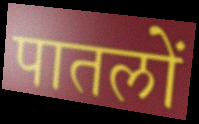
पातलों